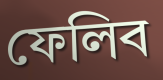
ফেলিব